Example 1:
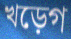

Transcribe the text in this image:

খড়েগ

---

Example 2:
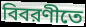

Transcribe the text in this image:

বিবরণীতে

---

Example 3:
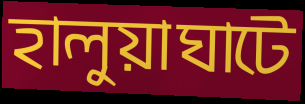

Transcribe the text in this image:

হালুয়াঘাটে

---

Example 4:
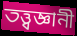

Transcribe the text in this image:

তত্ত্বজ্ঞানী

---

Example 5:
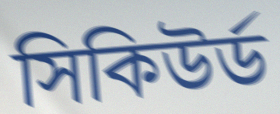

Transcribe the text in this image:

সিকিউর্ড